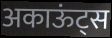
अकाऊंट्स